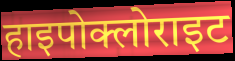
हाइपोक्लोराइट